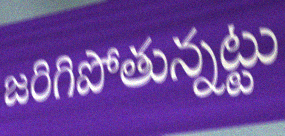
జరిగిపోతున్నట్టు